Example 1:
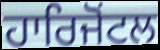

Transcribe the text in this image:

ਹਾਰਿਜੋਂਟਲ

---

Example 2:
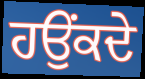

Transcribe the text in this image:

ਹਉਂਕਦੇ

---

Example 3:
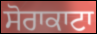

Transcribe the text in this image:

ਸੋਰਾਕਾਟਾ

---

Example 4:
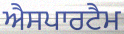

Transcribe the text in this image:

ਐਸਪਾਰਟੈਮ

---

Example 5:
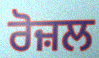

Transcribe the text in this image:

ਰੋਜ਼ਲ